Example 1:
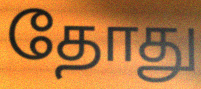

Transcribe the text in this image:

தோது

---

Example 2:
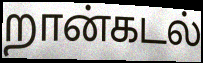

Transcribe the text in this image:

றான்கடல்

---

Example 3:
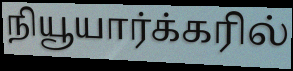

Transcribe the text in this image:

நியூயார்க்கரில்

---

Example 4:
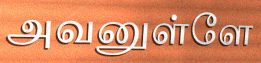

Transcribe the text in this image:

அவனுள்ளே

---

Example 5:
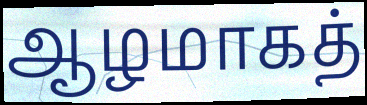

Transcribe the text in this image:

ஆழமாகத்